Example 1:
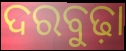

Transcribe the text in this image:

ଦରବୁଢ଼ା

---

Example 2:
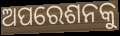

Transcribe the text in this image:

ଅପରେଶନକୁ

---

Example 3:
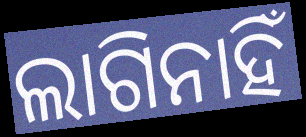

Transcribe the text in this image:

ଲାଗିନାହିଁ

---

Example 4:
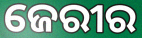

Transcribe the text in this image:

ଜେରୀର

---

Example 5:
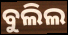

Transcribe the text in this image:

ବୁଲିଲ